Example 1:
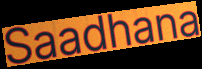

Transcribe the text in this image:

Saadhana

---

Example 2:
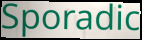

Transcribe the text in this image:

Sporadic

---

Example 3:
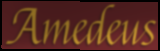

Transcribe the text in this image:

Amedeus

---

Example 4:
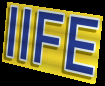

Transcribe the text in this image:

IIFE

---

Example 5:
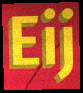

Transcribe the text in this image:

Eij